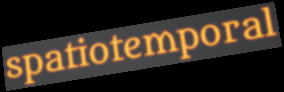
spatiotemporal